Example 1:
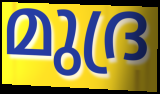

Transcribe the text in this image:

മുദ്ര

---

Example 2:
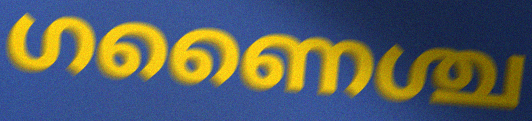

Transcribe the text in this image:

ഗണൈശ്ച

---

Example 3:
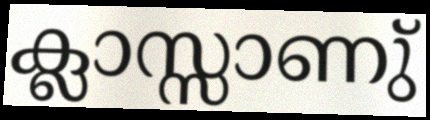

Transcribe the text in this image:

ക്ലാസ്സാണു്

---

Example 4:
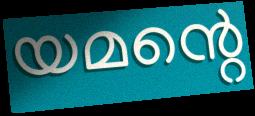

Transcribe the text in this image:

യമന്റെ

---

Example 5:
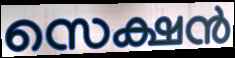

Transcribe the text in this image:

സെക്ഷൻ